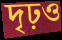
দৃঢ়ও